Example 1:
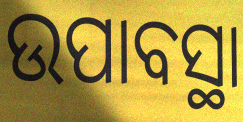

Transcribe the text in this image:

ଉପାବସ୍ଥା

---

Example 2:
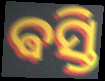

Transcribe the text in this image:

ଵସ୍ତି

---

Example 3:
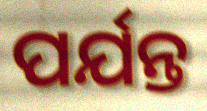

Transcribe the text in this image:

ପର୍ଯନ୍ତ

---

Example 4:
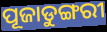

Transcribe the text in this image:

ପୂଜାଡୁଙ୍ଗରୀ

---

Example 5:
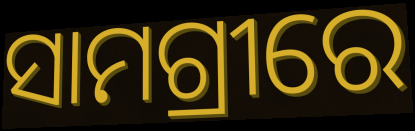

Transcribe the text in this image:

ସାମଗ୍ରୀରେ